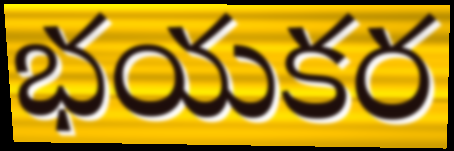
భయకర